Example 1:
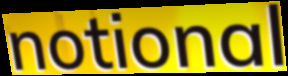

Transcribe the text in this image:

notional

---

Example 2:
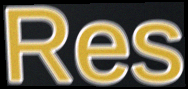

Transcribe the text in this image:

Res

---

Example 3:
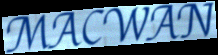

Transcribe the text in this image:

MACWAN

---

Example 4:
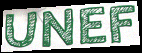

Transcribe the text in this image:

UNEF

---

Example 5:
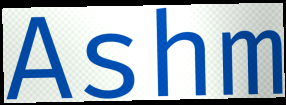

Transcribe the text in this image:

Ashm